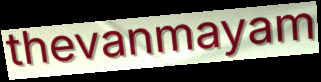
thevanmayam